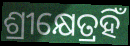
ଶ୍ରୀକ୍ଷେତ୍ରହିଁ